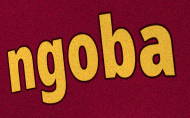
ngoba